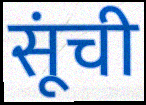
सूंची